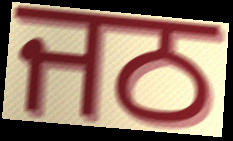
ਜਠ